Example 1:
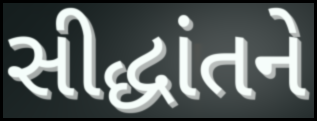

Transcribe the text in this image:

સીદ્ધાંતને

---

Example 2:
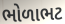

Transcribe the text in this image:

ભોળાભટ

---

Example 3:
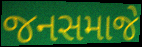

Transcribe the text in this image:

જનસમાજે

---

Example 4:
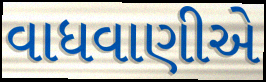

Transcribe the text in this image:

વાધવાણીએ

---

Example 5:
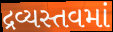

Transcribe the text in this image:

દ્રવ્યસ્તવમાં